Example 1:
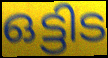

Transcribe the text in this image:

ഒട്ടിട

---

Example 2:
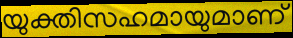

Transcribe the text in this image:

യുക്തിസഹമായുമാണ്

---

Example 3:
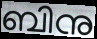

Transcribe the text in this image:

ബിനു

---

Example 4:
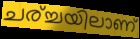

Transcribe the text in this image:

ചര്ച്ചയിലാണ്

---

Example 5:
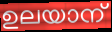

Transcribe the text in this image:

ഉലയാന്